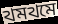
থমথমে